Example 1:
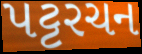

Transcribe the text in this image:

પટ્ટરચન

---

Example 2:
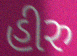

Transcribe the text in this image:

હીરુ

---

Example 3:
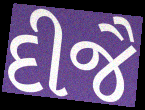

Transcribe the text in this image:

દીજૈ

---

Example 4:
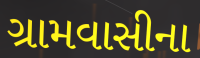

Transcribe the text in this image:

ગ્રામવાસીના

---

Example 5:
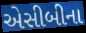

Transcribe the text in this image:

એસીબીના